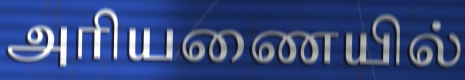
அரியணையில்